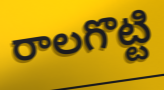
రాలగొట్టి